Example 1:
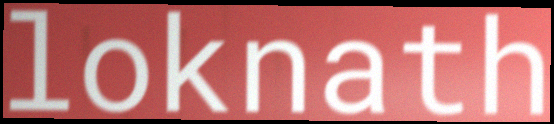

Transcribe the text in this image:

loknath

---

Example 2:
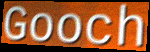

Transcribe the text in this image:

Gooch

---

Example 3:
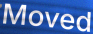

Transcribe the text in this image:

Moved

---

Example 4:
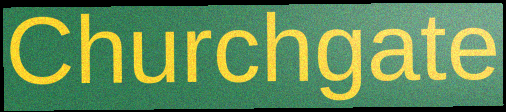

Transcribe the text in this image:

Churchgate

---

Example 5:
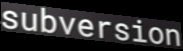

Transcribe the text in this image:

subversion